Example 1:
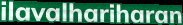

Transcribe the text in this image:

ilavalhariharan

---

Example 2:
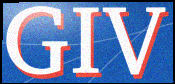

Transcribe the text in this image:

GIV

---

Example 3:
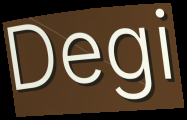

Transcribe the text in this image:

Degi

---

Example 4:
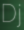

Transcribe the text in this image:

Dj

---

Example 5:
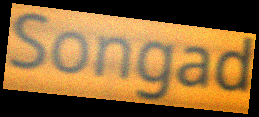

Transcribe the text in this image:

Songad